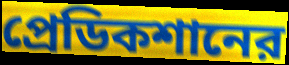
প্রেডিকশানের